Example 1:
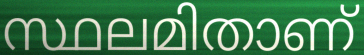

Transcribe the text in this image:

സ്ഥലമിതാണ്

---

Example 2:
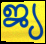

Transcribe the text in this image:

ജ്യ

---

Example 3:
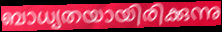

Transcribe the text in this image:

ബാധ്യതയായിരിക്കുന്നു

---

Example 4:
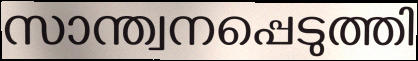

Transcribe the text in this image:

സാന്ത്വനപ്പെടുത്തി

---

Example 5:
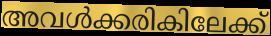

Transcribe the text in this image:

അവൾക്കരികിലേക്ക്